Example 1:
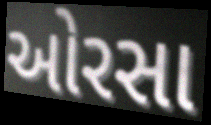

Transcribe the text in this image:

ઓરસા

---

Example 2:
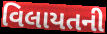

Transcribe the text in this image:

વિલાયતની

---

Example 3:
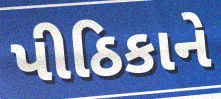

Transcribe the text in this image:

પીઠિકાને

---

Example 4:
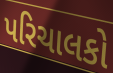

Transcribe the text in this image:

પરિચાલકો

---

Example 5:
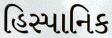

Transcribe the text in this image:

હિસ્પાનિક